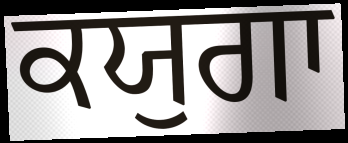
ਕਯੁਗਾ